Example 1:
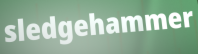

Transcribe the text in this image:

sledgehammer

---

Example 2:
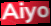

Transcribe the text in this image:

Aiyo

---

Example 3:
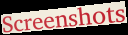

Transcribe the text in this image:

Screenshots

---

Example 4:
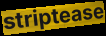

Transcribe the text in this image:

striptease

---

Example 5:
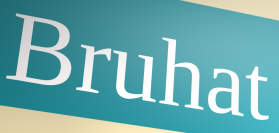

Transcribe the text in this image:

Bruhat